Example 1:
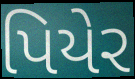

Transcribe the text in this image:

પિયેર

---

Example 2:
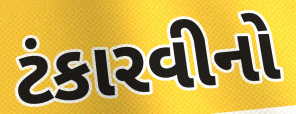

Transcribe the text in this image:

ટંકારવીનો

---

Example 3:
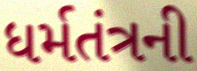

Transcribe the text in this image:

ધર્મતંત્રની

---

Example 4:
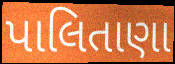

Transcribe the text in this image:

પાલિતાણા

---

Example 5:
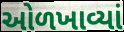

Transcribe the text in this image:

ઓળખાવ્યાં